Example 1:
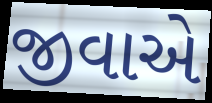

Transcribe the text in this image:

જીવાએ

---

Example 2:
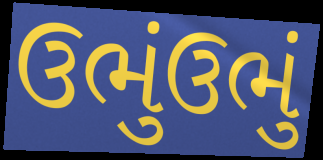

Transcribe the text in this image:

ઉભુંઉભું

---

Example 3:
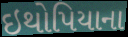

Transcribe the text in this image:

ઇથોપિયાના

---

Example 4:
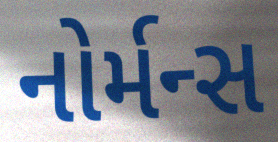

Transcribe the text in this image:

નોર્મન્સ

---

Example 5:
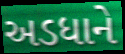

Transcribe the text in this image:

અડધાને